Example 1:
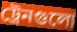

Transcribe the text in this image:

ট্রেনগুলো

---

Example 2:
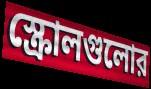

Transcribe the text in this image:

স্ক্রোলগুলোর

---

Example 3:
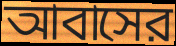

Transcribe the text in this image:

আবাসের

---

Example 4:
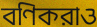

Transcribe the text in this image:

বণিকরাও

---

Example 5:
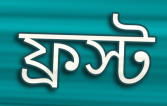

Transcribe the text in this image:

ফ্রস্ট